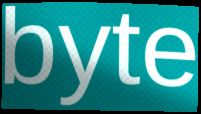
byte